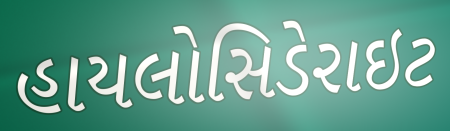
હાયલોસિડેરાઇટ